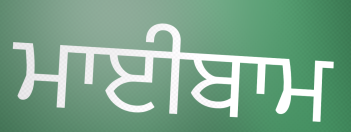
ਮਾਈਬਾਮ